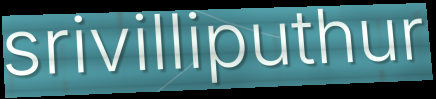
srivilliputhur